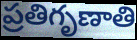
ప్రతిగృణాతి